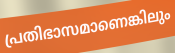
പ്രതിഭാസമാണെങ്കിലും